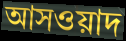
আসওয়াদ